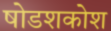
षोडशकोश